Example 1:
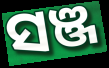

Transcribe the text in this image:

ସଞ୍ଜ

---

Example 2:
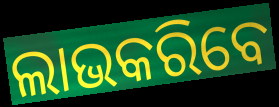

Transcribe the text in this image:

ଲାଭକରିବେ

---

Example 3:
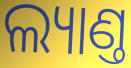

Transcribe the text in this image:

ଲ୍ୟାଣ୍ତ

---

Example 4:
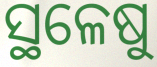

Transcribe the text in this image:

ସ୍ଥଳେଷୁ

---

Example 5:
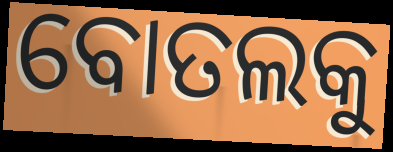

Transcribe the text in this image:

ବୋତଲକୁ